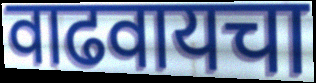
वाढवायचा